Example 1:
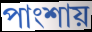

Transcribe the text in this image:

পাংশায়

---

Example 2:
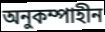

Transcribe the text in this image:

অনুকম্পাহীন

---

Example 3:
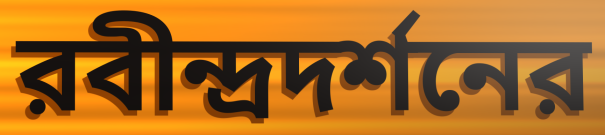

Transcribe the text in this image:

রবীন্দ্রদর্শনের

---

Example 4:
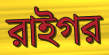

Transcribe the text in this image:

রাইগর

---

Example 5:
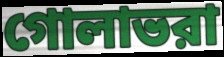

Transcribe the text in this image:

গোলাভরা